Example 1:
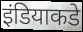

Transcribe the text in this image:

इंडियाकडे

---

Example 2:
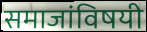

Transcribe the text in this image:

समाजांविषयी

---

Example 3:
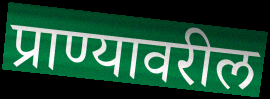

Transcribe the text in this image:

प्राण्यावरील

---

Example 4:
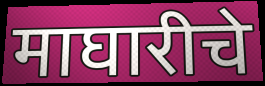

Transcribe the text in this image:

माघारीचे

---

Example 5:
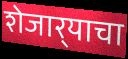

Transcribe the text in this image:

शेजार्‍याचा